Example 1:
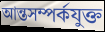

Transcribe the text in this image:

আন্তসম্পর্কযুক্ত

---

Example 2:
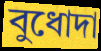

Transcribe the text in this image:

বুধোদা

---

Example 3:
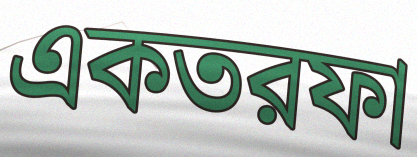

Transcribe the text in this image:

একতরফা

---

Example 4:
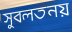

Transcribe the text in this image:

সুবলতনয়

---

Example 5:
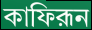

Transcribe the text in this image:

কাফিরূন